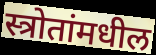
स्त्रोतांमधील